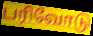
பரிவோடு